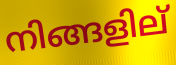
നിങ്ങളില്